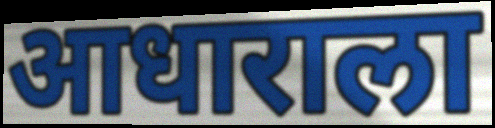
आधाराला